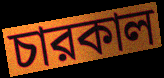
চারকাল